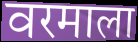
वरमाला